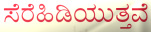
ಸೆರೆಹಿಡಿಯುತ್ತವೆ